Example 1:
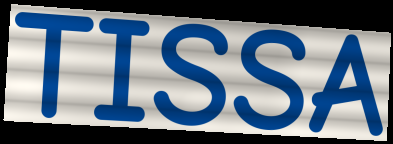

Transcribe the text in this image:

TISSA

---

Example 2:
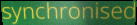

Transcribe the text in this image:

synchronised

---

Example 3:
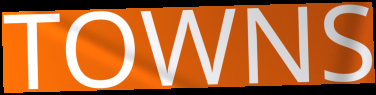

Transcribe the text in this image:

TOWNS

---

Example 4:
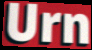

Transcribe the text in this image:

Urn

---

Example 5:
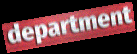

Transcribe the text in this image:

department